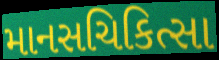
માનસચિકિત્સા